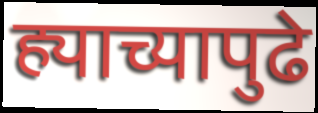
ह्याच्यापुढे